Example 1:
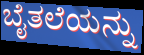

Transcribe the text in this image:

ಬೈತಲೆಯನ್ನು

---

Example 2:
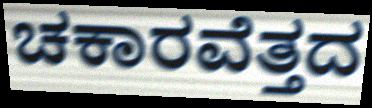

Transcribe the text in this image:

ಚಕಾರವೆತ್ತದ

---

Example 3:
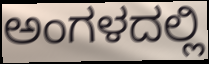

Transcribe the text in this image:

ಅಂಗಳದಲ್ಲಿ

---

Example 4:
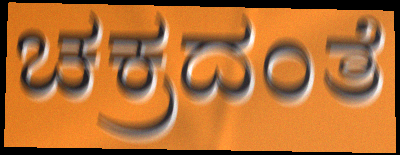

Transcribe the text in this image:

ಚಕ್ರದಂತೆ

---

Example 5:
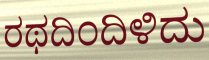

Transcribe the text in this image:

ರಥದಿಂದಿಳಿದು